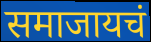
समाजायचं